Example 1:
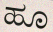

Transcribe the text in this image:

ಹೂ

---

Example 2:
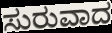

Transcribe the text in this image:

ಸುರುವಾದ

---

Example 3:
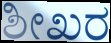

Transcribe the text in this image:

ಶೀಖರ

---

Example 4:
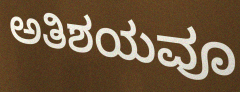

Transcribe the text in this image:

ಅತಿಶಯವೂ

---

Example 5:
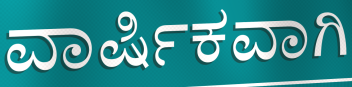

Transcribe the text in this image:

ವಾರ್ಷಿಕವಾಗಿ